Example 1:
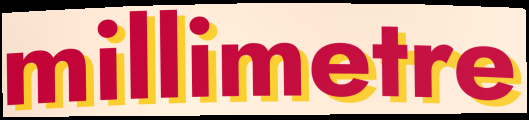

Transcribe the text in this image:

millimetre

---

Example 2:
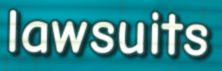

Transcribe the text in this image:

lawsuits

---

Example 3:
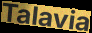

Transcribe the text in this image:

Talavia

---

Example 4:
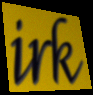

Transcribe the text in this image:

irk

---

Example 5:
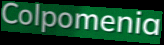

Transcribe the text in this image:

Colpomenia